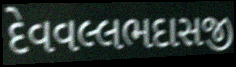
દેવવલ્લભદાસજી